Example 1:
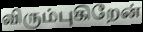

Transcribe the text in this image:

விரும்புகிறேன்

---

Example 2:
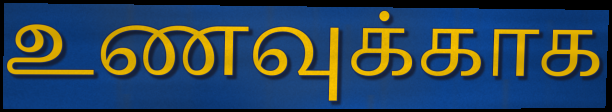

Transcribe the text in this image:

உணவுக்காக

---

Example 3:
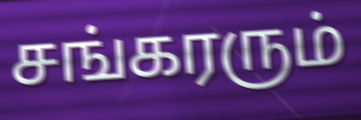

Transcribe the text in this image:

சங்கரரும்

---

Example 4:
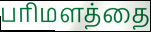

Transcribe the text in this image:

பரிமளத்தை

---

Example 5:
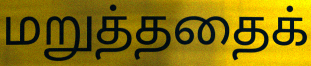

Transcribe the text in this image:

மறுத்ததைக்